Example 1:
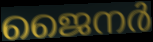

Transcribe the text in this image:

ജൈനർ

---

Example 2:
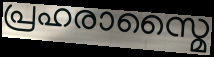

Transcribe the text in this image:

പ്രഹരാസ്മൈ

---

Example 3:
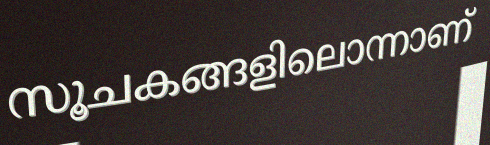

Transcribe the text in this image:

സൂചകങ്ങളിലൊന്നാണ്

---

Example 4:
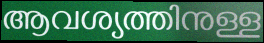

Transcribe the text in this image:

ആവശ്യത്തിനുള്ള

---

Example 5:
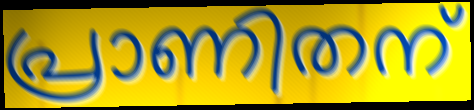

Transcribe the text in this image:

പ്രാണിതന്